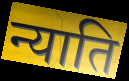
न्याति